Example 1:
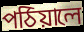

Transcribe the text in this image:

পঠিয়ালে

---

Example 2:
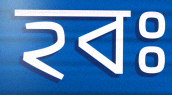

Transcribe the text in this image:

হবঃ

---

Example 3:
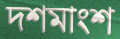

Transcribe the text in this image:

দশমাংশ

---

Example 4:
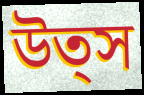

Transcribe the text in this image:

উত্স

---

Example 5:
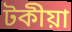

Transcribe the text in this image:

টকীয়া